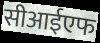
सीआईएफ